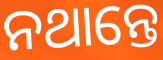
ନଥାନ୍ତେ